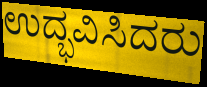
ಉದ್ಭವಿಸಿದರು